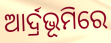
ଆର୍ଦ୍ରଭୂମିରେ